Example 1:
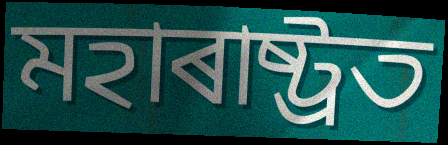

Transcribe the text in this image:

মহাৰাষ্ট্ৰত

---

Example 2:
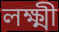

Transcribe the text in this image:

লক্ষ্মী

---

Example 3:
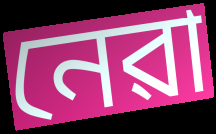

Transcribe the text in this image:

নেৱা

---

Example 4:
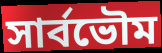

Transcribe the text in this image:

সাৰ্বভৌম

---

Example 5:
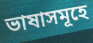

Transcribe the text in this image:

ভাষাসমূহে